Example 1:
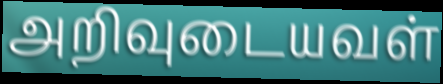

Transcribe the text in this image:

அறிவுடையவள்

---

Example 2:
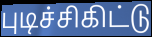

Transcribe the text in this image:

புடிச்சிகிட்டு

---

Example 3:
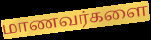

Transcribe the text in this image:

மாணவர்களை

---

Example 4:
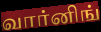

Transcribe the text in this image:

வார்னிங்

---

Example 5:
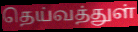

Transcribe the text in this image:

தெய்வத்துள்